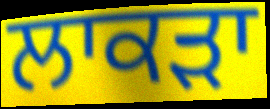
ਲਾਕੜਾ